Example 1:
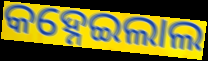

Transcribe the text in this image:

କହ୍ନେଇଲାଲ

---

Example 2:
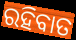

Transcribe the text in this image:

ରହିବାତ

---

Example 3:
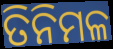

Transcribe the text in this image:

ତିନିମଳ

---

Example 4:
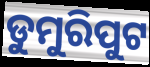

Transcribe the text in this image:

ଡୁମୁରିପୁଟ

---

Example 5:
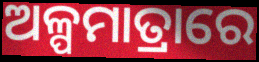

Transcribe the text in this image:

ଅଳ୍ପମାତ୍ରାରେ